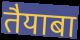
तैयाबा